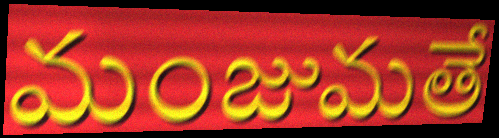
మంజుమతే